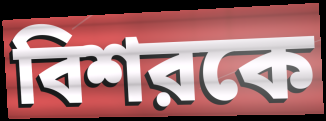
বিশরকে